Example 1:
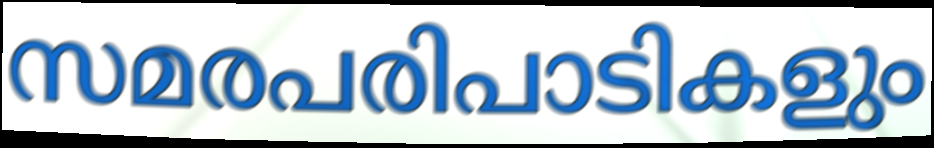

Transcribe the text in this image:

സമരപരിപാടികളും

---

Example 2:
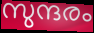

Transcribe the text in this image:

സുന്ദരം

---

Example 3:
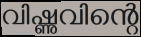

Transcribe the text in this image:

വിഷ്ണുവിന്റെ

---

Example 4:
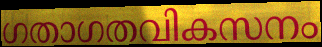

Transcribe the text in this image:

ഗതാഗതവികസനം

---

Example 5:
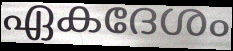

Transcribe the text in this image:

ഏകദേശം